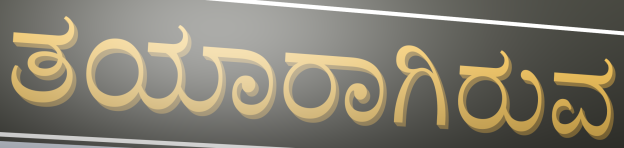
ತಯಾರಾಗಿರುವ